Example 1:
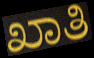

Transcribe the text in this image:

ಖಾತಿ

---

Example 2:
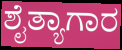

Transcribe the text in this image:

ಶೈತ್ಯಾಗಾರ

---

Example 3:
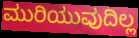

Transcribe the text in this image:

ಮುರಿಯುವುದಿಲ್ಲ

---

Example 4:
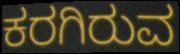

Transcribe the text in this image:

ಕರಗಿರುವ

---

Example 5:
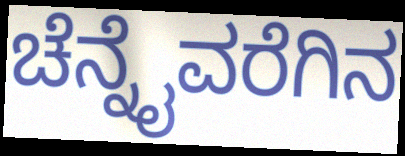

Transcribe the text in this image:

ಚೆನ್ನೈವರೆಗಿನ